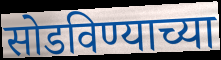
सोडविण्याच्या